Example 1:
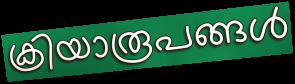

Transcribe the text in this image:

ക്രിയാരൂപങ്ങൾ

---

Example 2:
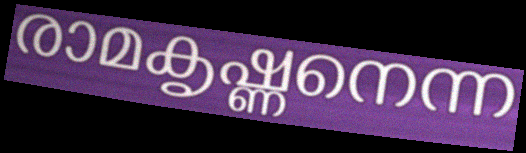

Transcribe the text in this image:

രാമകൃഷ്ണനെന്ന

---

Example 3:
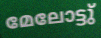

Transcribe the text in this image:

മേലോട്ടു്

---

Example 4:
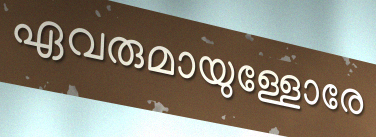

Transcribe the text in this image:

ഏവരുമായുള്ളോരേ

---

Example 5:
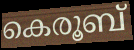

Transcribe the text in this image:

കെരൂബ്